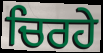
ਚਿਰਹੇ